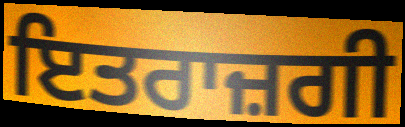
ਇਤਰਾਜ਼ਗੀ